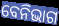
ବେନିଭାଗ